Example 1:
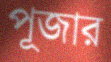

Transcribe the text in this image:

পূজার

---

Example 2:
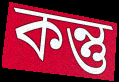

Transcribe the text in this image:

কন্তু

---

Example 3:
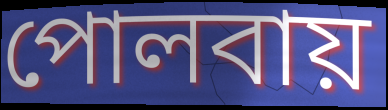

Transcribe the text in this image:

পোলবায়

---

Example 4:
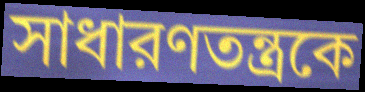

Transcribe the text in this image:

সাধারণতন্ত্রকে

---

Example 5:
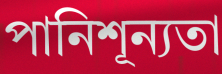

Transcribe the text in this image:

পানিশূন্যতা